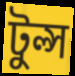
টুল্স